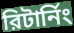
রিটার্নিং